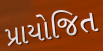
પ્રાયોજિત